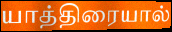
யாத்திரையால்